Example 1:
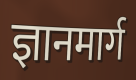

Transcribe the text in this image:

ज्ञानमार्ग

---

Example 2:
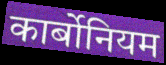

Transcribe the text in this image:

कार्बोनियम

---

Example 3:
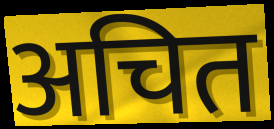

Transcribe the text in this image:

अचित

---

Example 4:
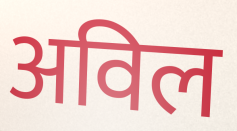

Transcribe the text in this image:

अविल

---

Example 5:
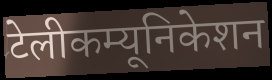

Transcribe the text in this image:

टेलीकम्यूनिकेशन